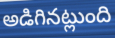
అడిగినట్లుంది